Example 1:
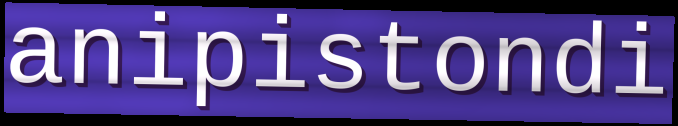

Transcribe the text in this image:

anipistondi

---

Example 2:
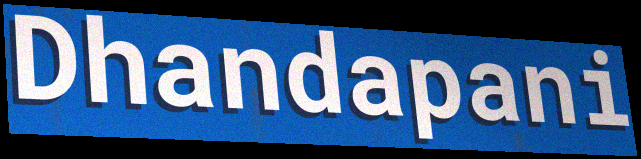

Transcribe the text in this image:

Dhandapani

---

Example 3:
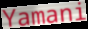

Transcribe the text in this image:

Yamani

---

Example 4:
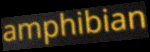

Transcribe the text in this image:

amphibian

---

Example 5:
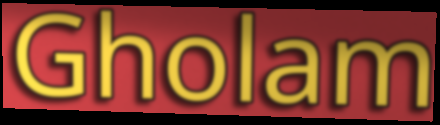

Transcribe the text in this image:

Gholam